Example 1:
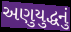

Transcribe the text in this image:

અણુયુદ્ધનું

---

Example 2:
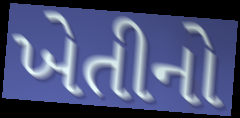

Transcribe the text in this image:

ખેતીનો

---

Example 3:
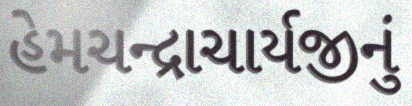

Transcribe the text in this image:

હેમચન્દ્રાચાર્યજીનું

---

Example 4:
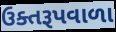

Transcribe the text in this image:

ઉક્તરૂપવાળા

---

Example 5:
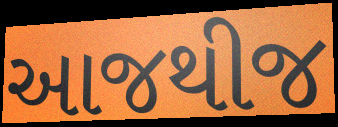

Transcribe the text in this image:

આજથીજ